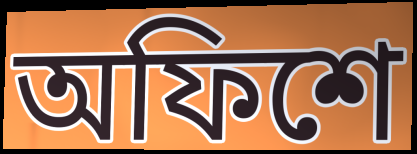
অফিশে